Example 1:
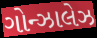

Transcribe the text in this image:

ગોન્ઝાલેઝ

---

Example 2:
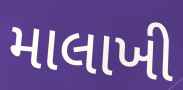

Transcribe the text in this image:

માલાખી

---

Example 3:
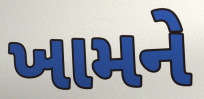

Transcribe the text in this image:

ખામને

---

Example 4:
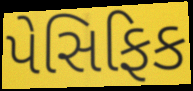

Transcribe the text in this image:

પેસિફિક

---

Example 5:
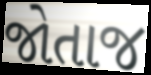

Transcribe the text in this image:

જોતાજ